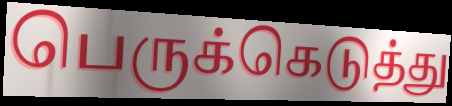
பெருக்கெடுத்து